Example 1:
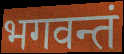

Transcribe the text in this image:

भगवन्तं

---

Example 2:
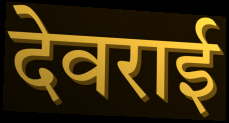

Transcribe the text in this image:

देवराई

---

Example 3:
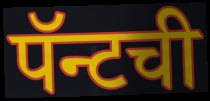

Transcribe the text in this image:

पॅन्टची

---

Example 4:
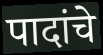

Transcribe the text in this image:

पादांचे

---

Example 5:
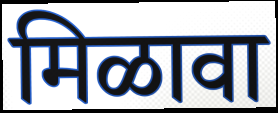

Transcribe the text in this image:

मिळावा